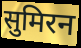
सुमिरन